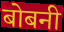
बोबनी